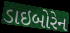
ડાઇબોરેન